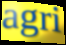
agri